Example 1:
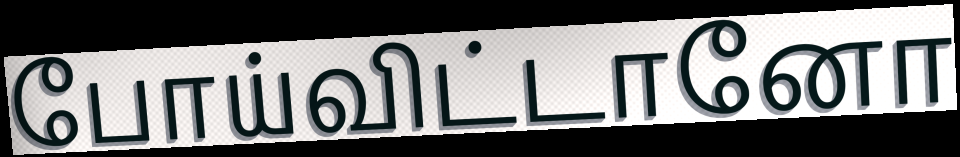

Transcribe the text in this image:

போய்விட்டானோ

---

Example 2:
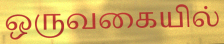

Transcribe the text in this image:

ஒருவகையில்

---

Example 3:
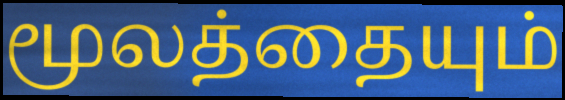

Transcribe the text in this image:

மூலத்தையும்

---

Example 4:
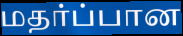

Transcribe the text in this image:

மதர்ப்பான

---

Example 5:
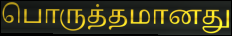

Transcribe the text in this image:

பொருத்தமானது